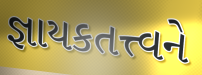
જ્ઞાયકતત્ત્વને